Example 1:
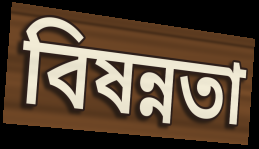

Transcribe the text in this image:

বিষন্নতা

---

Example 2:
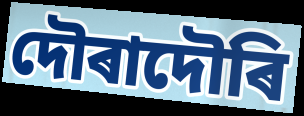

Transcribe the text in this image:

দৌৰাদৌৰি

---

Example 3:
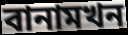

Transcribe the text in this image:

বানামখন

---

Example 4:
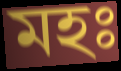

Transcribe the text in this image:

মহঃ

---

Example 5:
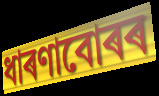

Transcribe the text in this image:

ধাৰণাবোৰৰ